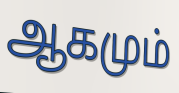
ஆகமும்